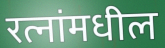
रत्नांमधील